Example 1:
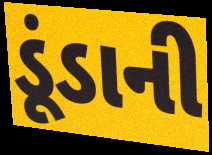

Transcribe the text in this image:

ડૂંડાની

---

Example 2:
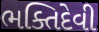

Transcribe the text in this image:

ભક્તિદેવી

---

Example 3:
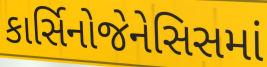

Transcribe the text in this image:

કાર્સિનોજેનેસિસમાં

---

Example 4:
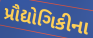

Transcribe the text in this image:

પ્રૌદ્યોગિકીના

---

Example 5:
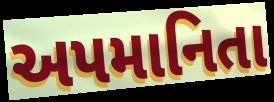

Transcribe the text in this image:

અપમાનિતા